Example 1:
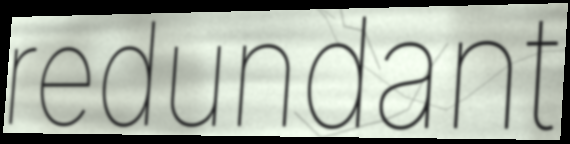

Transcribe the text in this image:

redundant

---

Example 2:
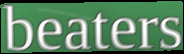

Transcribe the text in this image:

beaters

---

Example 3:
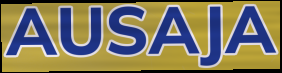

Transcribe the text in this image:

AUSAJA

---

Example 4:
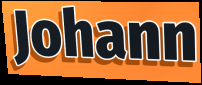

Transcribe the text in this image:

Johann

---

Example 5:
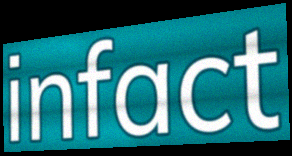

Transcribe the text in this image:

infact